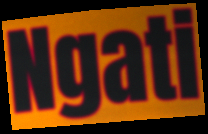
Ngati